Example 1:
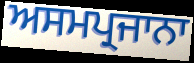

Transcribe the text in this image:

ਅਸਮਪ੍ਰਜਾਨਾ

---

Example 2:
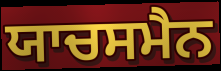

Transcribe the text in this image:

ਯਾਚਸਮੈਨ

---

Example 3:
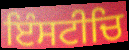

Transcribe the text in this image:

ਇੰਸਟੀਚਿ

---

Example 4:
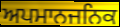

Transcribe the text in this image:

ਅਪਮਾਨਜਨਿਕ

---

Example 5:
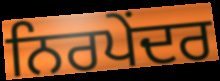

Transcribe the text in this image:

ਨਿਰਪੇਂਦਰ